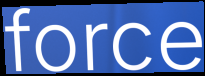
force